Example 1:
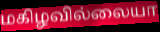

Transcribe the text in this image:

மகிழவில்லையா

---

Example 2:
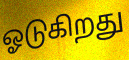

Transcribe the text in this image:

ஓடுகிறது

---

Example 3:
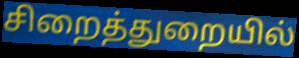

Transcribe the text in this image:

சிறைத்துறையில்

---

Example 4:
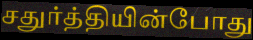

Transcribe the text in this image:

சதுர்த்தியின்போது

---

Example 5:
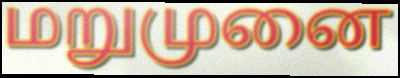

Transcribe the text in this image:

மறுமுனை